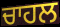
ਚਾਹਲ